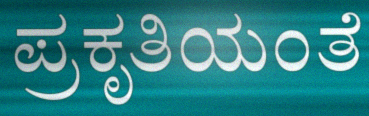
ಪ್ರಕೃತಿಯಂತೆ